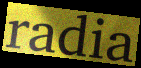
radia